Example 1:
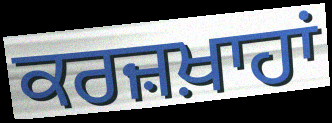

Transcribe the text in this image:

ਕਰਜ਼ਖ਼ਾਹਾਂ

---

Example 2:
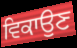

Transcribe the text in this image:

ਵਿਕਾਉਣ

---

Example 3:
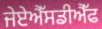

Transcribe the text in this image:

ਜੇਏਐੱਸਡੀਐੱਫ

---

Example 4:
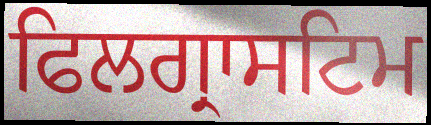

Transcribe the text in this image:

ਫਿਲਗ੍ਰਾਸਟਿਮ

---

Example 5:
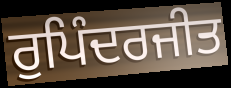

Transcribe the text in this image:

ਰੁਪਿੰਦਰਜੀਤ